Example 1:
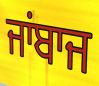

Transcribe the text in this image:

ਜਾਂਬਾਜ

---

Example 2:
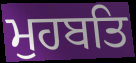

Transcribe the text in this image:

ਮੁਹਬਤਿ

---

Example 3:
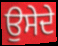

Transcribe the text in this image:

ਉਸੇਦੇ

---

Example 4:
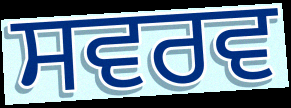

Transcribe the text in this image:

ਸਵਰਵ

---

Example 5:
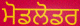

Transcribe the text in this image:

ਮੋਡਲੋਡਰ